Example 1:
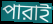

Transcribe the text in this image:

পারাই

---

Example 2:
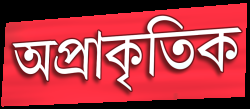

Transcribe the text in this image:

অপ্রাকৃতিক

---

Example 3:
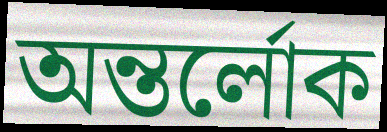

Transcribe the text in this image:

অন্তর্লোক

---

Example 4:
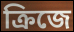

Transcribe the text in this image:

ক্রিজে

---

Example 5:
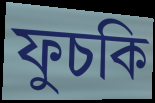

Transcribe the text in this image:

ফুচকি